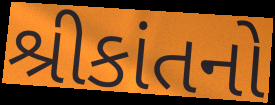
શ્રીકાંતનો